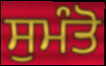
ਸੁਮੰਤੋ